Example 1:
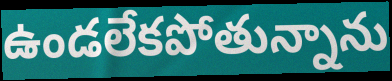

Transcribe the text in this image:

ఉండలేకపోతున్నాను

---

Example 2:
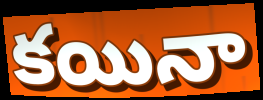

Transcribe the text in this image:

కయినా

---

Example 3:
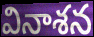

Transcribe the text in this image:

వినాశన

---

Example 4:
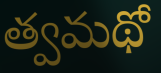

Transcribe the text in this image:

త్వమథో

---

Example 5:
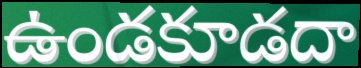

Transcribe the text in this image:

ఉండకూడదా